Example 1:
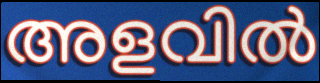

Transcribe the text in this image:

അളവിൽ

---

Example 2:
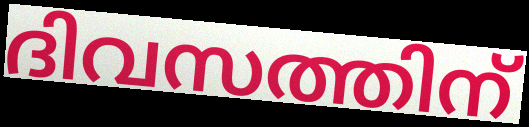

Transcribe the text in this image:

ദിവസത്തിന്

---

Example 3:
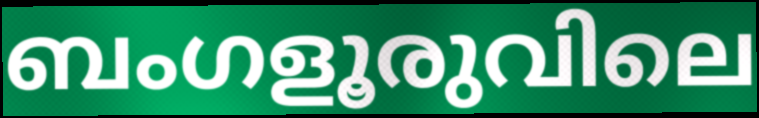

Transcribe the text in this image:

ബംഗളൂരുവിലെ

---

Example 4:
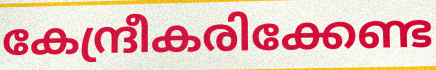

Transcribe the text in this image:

കേന്ദ്രീകരിക്കേണ്ട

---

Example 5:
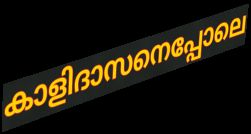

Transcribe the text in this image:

കാളിദാസനെപ്പോലെ